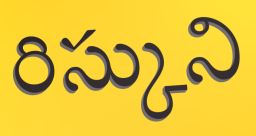
రిస్కుని